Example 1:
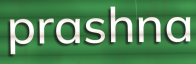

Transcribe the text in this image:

prashna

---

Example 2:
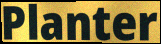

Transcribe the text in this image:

Planter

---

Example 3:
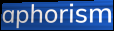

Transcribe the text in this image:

aphorism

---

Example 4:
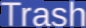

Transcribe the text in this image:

Trash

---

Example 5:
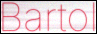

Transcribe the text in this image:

Bartol